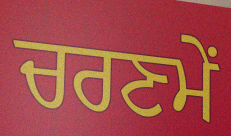
ਚਰਣਮੇਂ